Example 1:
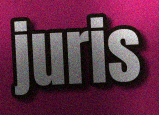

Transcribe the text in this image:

juris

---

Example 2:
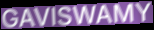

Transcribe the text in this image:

GAVISWAMY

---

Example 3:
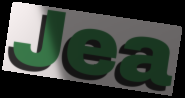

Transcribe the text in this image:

Jea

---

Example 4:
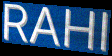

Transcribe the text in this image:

RAHI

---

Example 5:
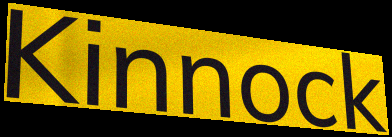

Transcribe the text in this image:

Kinnock